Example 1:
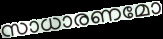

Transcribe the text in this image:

സാധാരണമോ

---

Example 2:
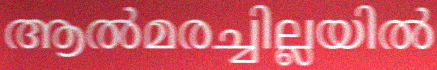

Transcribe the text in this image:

ആൽമരച്ചില്ലയിൽ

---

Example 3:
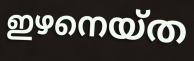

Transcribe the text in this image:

ഇഴനെയ്ത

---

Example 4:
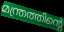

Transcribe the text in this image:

മന്ത്രത്തിന്റെ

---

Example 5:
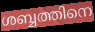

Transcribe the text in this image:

ശബ്ബത്തിനെ